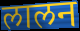
लालन